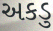
અકડુ